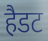
हैडट